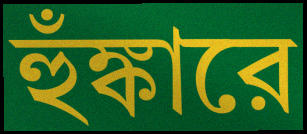
হুঁঙ্কারে